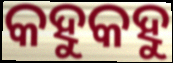
କହୁକହୁ